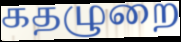
கதழுறை